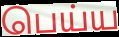
பெய்ய